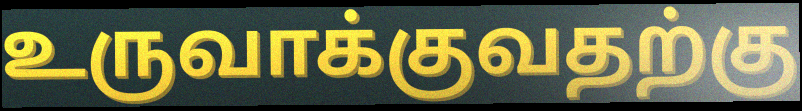
உருவாக்குவதற்கு